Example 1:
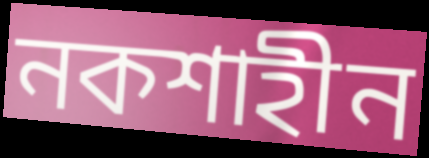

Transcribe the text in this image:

নকশাহীন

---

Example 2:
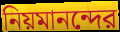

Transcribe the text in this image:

নিয়মানন্দের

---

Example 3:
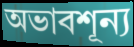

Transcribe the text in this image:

অভাবশূন্য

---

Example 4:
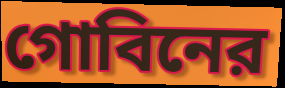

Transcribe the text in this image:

গোবিনের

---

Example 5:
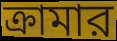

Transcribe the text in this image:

ক্রামার